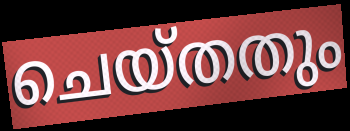
ചെയ്തതും